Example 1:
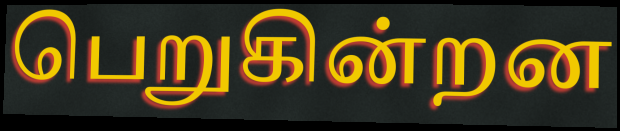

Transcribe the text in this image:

பெறுகின்றன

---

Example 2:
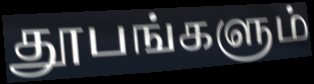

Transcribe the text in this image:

தூபங்களும்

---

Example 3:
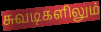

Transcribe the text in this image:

சுவடிகளிலும்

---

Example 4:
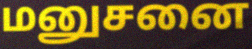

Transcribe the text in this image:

மனுசனை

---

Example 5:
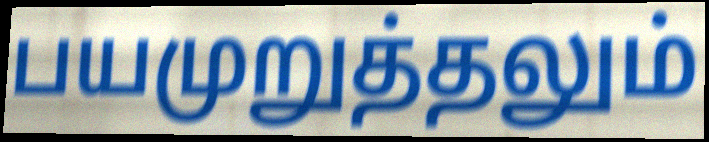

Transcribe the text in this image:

பயமுறுத்தலும்